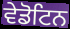
ਵੇਡੋਟਿਨ